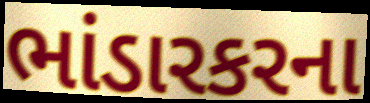
ભાંડારકરના